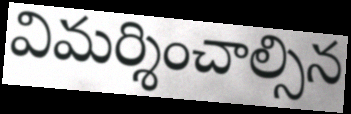
విమర్శించాల్సిన